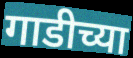
गाडीच्या